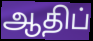
ஆதிப்